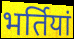
भर्तियां